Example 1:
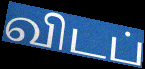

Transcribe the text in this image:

விடப்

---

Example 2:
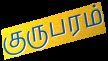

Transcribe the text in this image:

குருபரம்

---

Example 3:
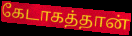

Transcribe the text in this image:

கேடாகத்தான்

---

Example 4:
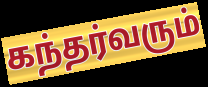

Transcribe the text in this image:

கந்தர்வரும்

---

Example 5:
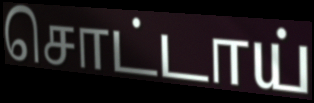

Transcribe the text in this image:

சொட்டாய்